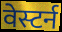
वेस्‍टर्न